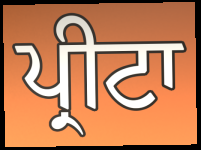
ਪ੍ਰੀਟਾ